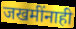
जखमींनाही